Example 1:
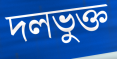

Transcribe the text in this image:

দলভুক্ত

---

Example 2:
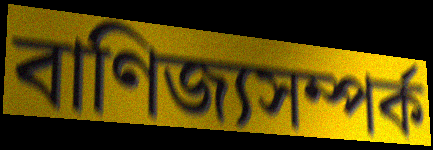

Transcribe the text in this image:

বাণিজ্যসম্পর্ক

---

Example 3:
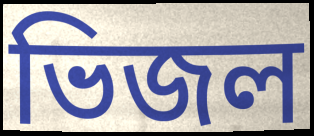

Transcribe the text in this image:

ভিজল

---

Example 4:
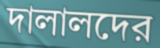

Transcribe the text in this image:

দালালদের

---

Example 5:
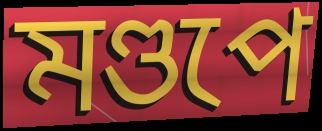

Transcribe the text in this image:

মণ্ডপে